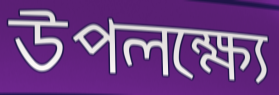
উপলক্ষ্যে